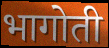
भागोती